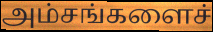
அம்சங்களைச்